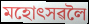
মহোৎসৱলৈ